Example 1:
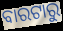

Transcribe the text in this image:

ବାରଟାରୁ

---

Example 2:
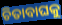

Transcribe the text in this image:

ଚିତାବାଘକୁ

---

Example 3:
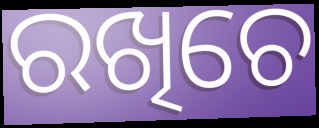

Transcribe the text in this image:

ରଖିଚେ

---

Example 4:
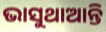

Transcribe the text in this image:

ଭାସୁଥାଆନ୍ତି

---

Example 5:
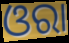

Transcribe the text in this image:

ଓରା